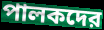
পালকদের